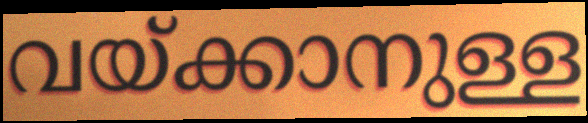
വയ്ക്കാനുള്ള